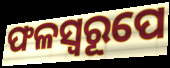
ଫଳସ୍ୱରୂପେ